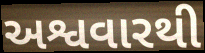
અશ્વવારથી